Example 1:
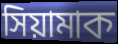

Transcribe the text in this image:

সিয়ামাক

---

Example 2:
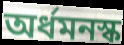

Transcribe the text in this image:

অর্ধমনস্ক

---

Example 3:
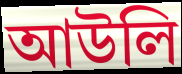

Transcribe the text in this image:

আউলি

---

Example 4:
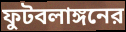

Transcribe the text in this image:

ফুটবলাঙ্গনের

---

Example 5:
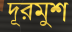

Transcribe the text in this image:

দূরমুশ